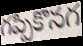
గప్పికొనగ